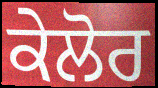
ਕੇਲੋਰ